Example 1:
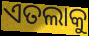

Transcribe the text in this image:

ଏତଲାକୁ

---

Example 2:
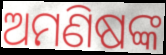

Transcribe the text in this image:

ଅମଣିଷଙ୍କ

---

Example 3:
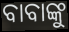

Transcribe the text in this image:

ବାବାଙ୍କୁ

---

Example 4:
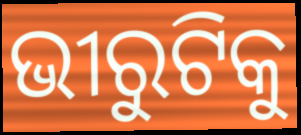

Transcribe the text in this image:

ଭୀରୁଟିକୁ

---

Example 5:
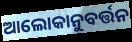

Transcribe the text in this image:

ଆଲୋକାନୁବର୍ତ୍ତନ